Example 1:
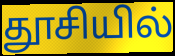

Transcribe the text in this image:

தூசியில்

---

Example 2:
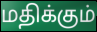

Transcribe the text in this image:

மதிக்கும்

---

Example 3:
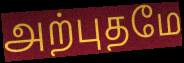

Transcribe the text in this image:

அற்புதமே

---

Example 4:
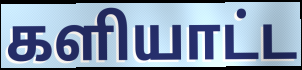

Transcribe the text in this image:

களியாட்ட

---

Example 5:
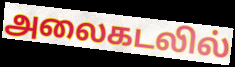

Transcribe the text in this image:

அலைகடலில்